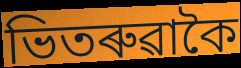
ভিতৰুৱাকৈ